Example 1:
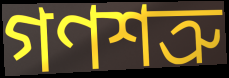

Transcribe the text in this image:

গণশত্রু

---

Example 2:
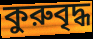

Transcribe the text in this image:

কুরুবৃদ্ধ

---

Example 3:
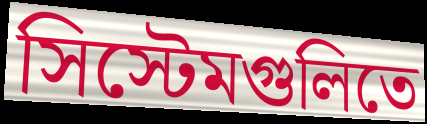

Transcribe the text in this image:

সিস্টেমগুলিতে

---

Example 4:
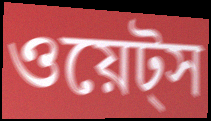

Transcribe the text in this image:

ওয়েট্স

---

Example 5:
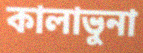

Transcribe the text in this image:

কালাভুনা